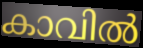
കാവിൽ